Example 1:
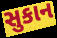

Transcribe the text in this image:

સુકાન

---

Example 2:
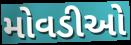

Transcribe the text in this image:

મોવડીઓ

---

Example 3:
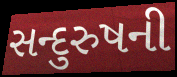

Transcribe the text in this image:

સન્દુરુષની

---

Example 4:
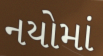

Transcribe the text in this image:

નયોમાં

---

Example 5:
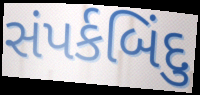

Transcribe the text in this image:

સંપર્કબિંદુ